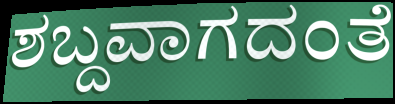
ಶಬ್ದವಾಗದಂತೆ